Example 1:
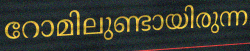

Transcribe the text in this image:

റോമിലുണ്ടായിരുന്ന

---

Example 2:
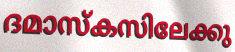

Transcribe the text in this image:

ദമാസ്കസിലേക്കു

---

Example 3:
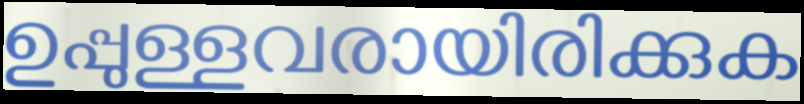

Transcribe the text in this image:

ഉപ്പുള്ളവരായിരിക്കുക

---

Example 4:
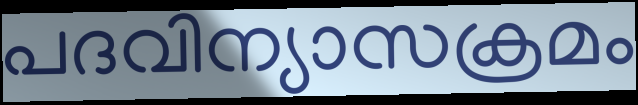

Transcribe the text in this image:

പദവിന്യാസക്രമം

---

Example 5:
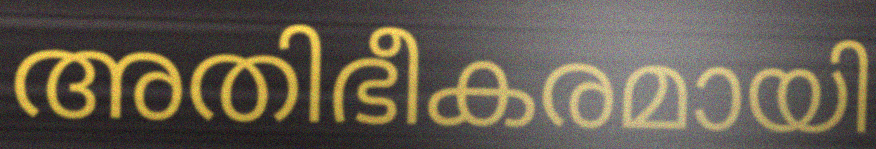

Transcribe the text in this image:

അതിഭീകരമായി